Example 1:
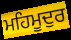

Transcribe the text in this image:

ਮਹਿਮੂਦੁਰ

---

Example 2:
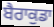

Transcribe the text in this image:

ਬੈਰਾਕੁਡਾ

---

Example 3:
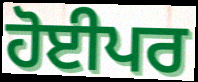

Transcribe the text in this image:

ਹੋਈਪਰ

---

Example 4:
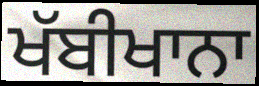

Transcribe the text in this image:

ਖੱਬੀਖਾਨਾ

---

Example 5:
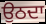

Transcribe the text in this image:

ਉਠਦਾ